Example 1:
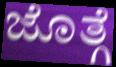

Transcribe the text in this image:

ಜೊತ್ಗೆ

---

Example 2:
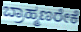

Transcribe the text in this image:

ಬ್ರಾಹ್ಮಣರೇಕೆ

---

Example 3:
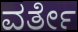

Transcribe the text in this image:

ವರ್ತೇ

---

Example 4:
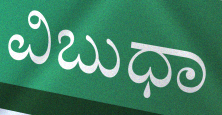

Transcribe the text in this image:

ವಿಬುಧಾ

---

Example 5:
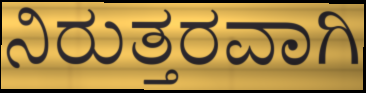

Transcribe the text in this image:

ನಿರುತ್ತರವಾಗಿ